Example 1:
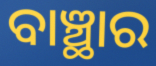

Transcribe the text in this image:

ବାଞ୍ଛାର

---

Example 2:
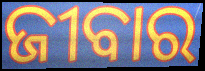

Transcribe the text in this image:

ଜୀବାର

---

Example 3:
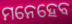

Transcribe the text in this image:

ମନେହେବ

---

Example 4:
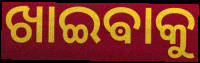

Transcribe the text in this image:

ଖାଇଵାକୁ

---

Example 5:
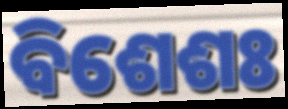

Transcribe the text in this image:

ବିଶେଶଃ